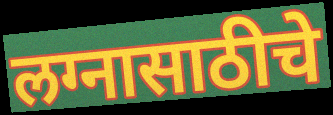
लग्नासाठीचे